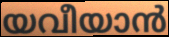
യവീയാൻ